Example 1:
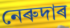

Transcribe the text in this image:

নেৰুদাৰ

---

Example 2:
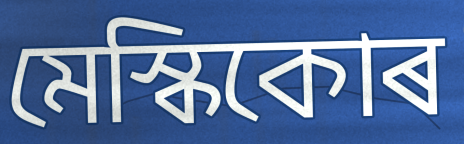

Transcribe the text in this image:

মেস্কিকোৰ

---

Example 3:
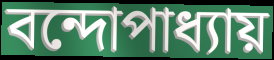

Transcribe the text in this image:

বন্দোপাধ্যায়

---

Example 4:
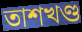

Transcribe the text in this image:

তাশখণ্ড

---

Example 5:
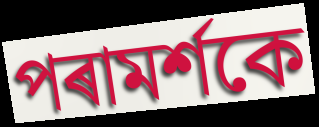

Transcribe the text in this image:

পৰামৰ্শকে